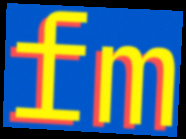
fm